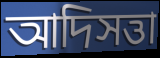
আদিসত্তা